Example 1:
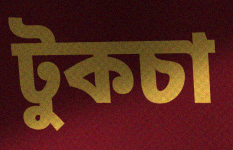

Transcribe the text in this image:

টুকচা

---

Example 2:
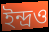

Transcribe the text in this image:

ইন্দ্রও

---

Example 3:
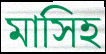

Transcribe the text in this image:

মাসিহ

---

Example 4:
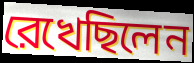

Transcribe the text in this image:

রেখেছিলেন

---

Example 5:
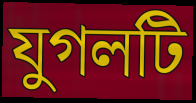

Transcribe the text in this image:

যুগলটি